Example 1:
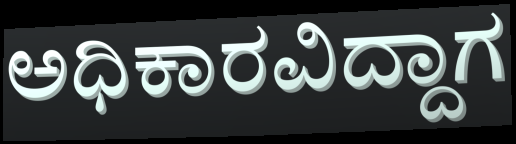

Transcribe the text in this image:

ಅಧಿಕಾರವಿದ್ದಾಗ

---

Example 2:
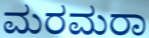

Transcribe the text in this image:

ಮರಮರಾ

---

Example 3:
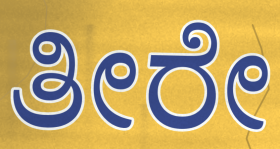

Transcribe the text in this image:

ತೀರೇ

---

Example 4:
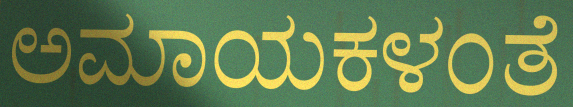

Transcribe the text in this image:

ಅಮಾಯಕಳಂತೆ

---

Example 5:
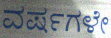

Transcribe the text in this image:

ವರ್ಷಗಳೇ